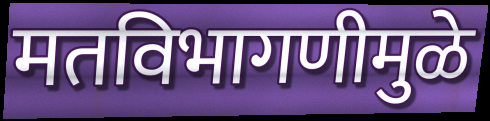
मतविभागणीमुळे